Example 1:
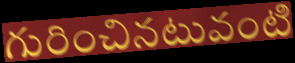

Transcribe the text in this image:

గురించినటువంటి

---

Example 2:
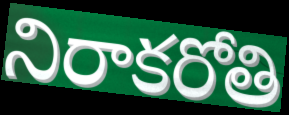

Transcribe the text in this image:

నిరాకరోతి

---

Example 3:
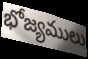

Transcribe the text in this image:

భోజ్యములు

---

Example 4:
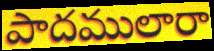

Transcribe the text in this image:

పాదములారా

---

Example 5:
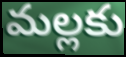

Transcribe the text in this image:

మల్లకు